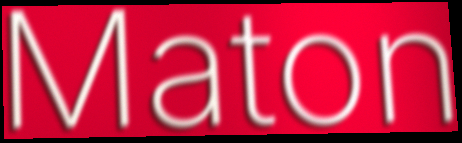
Maton